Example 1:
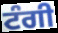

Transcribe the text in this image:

ਟੰਗੀ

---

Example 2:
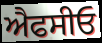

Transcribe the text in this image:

ਐਫਸੀਓ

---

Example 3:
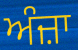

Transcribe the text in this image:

ਅੰਜ਼ਾ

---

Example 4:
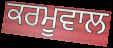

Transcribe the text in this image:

ਕਰਮੂਵਾਲ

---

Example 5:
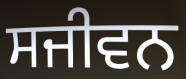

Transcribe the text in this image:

ਸਜੀਵਨ